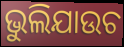
ଭୁଲିଯାଉଚ